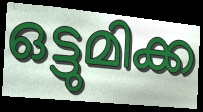
ഒട്ടുമിക്ക